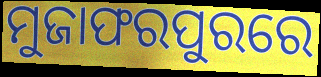
ମୁଜାଫରପୁରରେ